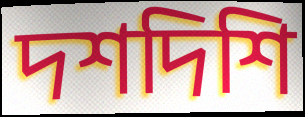
দশদিশি